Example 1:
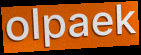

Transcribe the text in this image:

olpaek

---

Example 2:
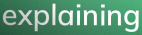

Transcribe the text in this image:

explaining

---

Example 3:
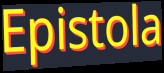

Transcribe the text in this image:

Epistola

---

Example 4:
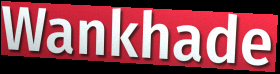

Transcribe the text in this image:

Wankhade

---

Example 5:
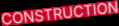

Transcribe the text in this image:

CONSTRUCTION